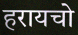
हरायचो